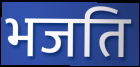
भजति